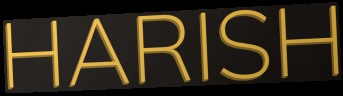
HARISH